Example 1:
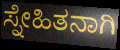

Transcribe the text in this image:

ಸ್ನೇಹಿತನಾಗಿ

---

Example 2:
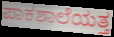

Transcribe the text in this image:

ಪಾಕಶಾಲೆಯತ್ತ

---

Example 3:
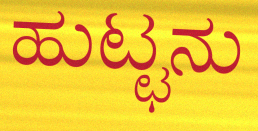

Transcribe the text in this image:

ಹುಟ್ಟನು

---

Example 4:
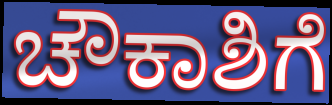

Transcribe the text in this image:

ಚೌಕಾಶಿಗೆ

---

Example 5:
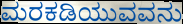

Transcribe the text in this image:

ಮರಕಡಿಯುವವನು